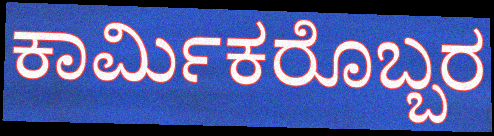
ಕಾರ್ಮಿಕರೊಬ್ಬರ